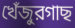
খেঁজুরগাছ